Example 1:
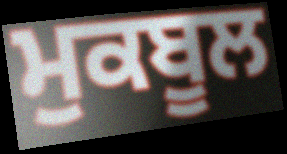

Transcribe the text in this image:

ਮੁਕਬੂਲ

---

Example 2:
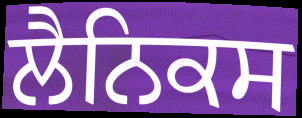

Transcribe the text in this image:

ਲੈਨਿਕਸ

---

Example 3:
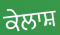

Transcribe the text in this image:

ਕੇਲਾਸ਼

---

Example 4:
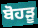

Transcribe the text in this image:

ਬੋਹੜੂ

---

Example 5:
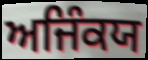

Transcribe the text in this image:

ਅਜਿੰਕਯ